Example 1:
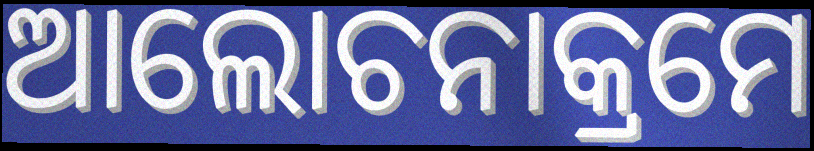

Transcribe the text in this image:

ଆଲୋଚନାକ୍ରମେ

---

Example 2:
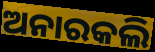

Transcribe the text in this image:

ଅନାରକଲି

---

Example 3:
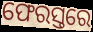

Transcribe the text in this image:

ଫେରସ୍ତରେ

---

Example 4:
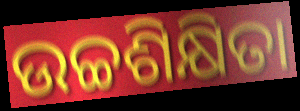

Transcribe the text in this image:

ଉଚ୍ଚଶିକ୍ଷିତା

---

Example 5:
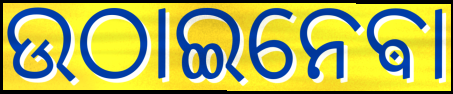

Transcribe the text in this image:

ଉଠାଇନେଵା